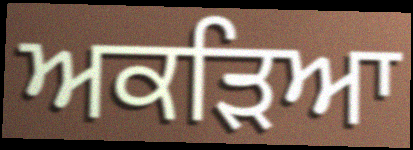
ਅਕੜਿਆ